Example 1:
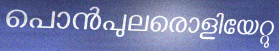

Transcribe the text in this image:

പൊൻപുലരൊളിയേറ്റു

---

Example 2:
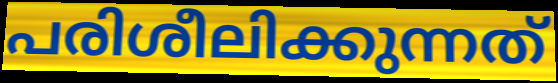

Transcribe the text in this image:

പരിശീലിക്കുന്നത്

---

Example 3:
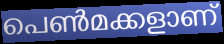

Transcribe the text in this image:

പെൺമക്കളാണ്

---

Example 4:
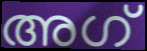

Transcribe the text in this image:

അഗ്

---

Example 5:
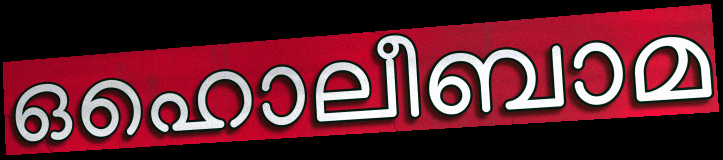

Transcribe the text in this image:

ഒഹൊലീബാമ